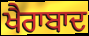
ਖੈਰਾਬਾਦ